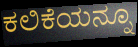
ಕಲಿಕೆಯನ್ನೂ